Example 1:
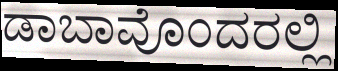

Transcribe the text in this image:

ಡಾಬಾವೊಂದರಲ್ಲಿ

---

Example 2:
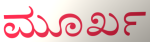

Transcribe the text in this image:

ಮೂರ್ಖ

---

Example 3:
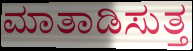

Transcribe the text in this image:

ಮಾತಾಡಿಸುತ್ತ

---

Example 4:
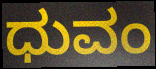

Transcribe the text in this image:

ಧುವಂ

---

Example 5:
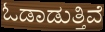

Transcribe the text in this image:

ಓಡಾಡುತ್ತಿವೆ